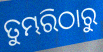
ତୁମ୍ଭରିଠାରୁ